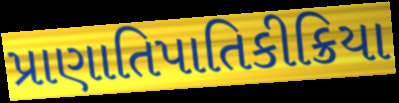
પ્રાણાતિપાતિકીક્રિયા